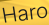
Haro